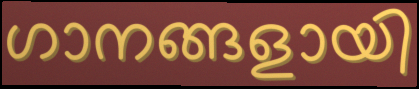
ഗാനങ്ങളായി